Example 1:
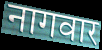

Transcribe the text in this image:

नागवार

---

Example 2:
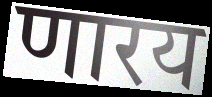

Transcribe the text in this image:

णारय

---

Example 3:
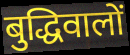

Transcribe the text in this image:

बुद्धिवालों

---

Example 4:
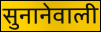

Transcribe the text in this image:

सुनानेवाली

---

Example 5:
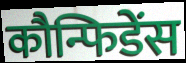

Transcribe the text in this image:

कौन्फिडेंस